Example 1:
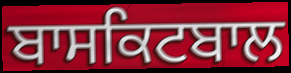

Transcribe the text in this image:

ਬਾਸਕਿਟਬਾਲ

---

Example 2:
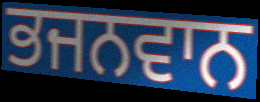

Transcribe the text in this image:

ਭਜਨਵਾਨ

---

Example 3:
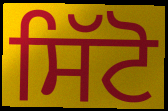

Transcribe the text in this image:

ਸਿੱਟੋ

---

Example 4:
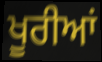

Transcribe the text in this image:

ਖੂਰੀਆਂ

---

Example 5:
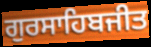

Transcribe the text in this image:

ਗੁਰਸਾਹਿਬਜੀਤ